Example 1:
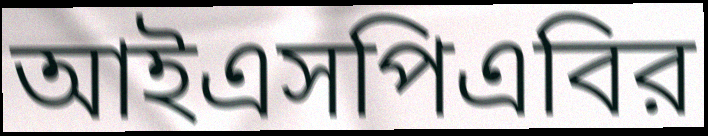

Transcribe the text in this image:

আইএসপিএবির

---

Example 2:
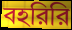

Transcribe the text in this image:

বহরিরি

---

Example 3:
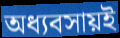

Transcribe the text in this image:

অধ্যবসায়ই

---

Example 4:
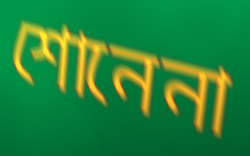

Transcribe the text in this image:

শোনেনা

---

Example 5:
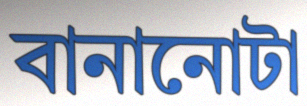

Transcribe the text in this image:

বানানোটা